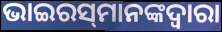
ଭାଇରସ୍‌ମାନଙ୍କଦ୍ୱାରା